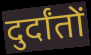
दुर्दांतों